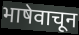
भाषेवाचून